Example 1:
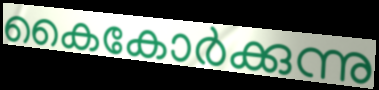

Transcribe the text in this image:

കൈകോർക്കുന്നു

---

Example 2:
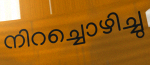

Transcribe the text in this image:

നിറച്ചൊഴിച്ചു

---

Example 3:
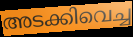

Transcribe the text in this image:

അടക്കിവെച്ച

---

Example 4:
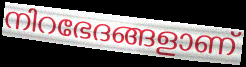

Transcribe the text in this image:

നിറഭേദങ്ങളാണ്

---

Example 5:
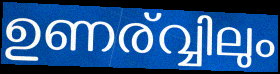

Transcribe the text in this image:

ഉണര്വ്വിലും